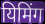
यिमिंग